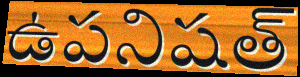
ఉపనిషత్